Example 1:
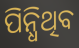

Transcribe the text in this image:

ପିନ୍ଧିଥିବ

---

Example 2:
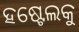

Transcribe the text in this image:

ହଷ୍ଟେଲକୁ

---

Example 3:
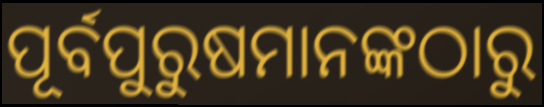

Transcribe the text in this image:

ପୂର୍ବପୁରୁଷମାନଙ୍କଠାରୁ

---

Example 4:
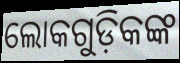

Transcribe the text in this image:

ଲୋକଗୁଡ଼ିକଙ୍କ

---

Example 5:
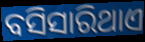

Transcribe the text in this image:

ବସିସାରିଥାଏ